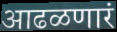
आढळणारं